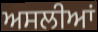
ਅਸਲੀਆਂ